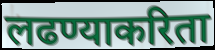
लढण्याकरिता